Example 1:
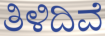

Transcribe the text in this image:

ತಿಳಿದಿವೆ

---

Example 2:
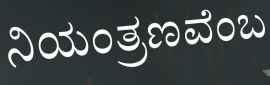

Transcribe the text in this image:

ನಿಯಂತ್ರಣವೆಂಬ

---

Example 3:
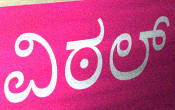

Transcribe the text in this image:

ವಿಠಲ್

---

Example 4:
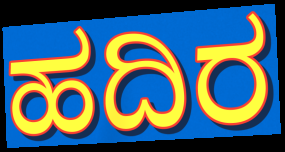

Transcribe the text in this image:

ಹದಿರ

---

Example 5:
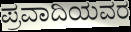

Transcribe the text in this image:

ಪ್ರವಾದಿಯವರ